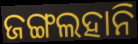
ଜଙ୍ଗଲହାନି